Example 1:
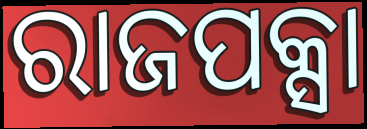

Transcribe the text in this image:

ରାଜପକ୍ସା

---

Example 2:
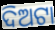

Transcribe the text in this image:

ଦିଅଟା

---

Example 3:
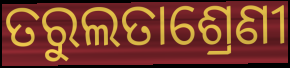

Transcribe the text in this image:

ତରୁଲତାଶ୍ରେଣୀ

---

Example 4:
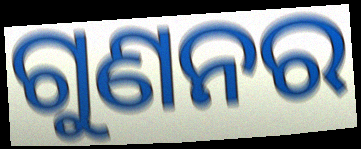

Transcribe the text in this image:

ଗୁଣନର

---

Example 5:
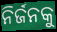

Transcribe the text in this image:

ନିର୍ଜନକୁ